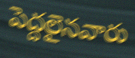
పెద్దలైనవారు